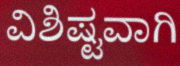
ವಿಶಿಷ್ಟವಾಗಿ